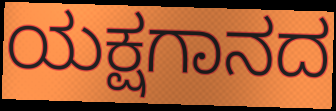
ಯಕ್ಷಗಾನದ